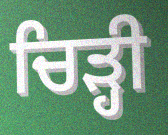
ਚਿੜ੍ਹੀ